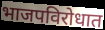
भाजपविरोधात